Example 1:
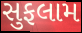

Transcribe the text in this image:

સુફલામ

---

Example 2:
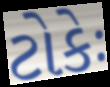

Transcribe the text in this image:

ટોકેઃ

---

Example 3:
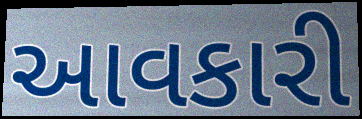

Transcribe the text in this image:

આવકારી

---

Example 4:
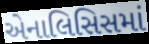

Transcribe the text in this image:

એનાલિસિસમાં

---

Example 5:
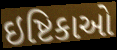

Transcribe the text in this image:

ઇષ્ટિકાઓ